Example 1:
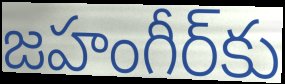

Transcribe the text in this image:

జహంగీర్‌కు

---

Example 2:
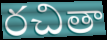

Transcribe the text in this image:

రచితా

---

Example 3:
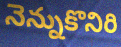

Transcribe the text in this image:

నెన్నుకొనిరి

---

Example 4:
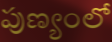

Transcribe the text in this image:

పుణ్యంలో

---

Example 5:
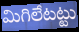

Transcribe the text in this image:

మిగిలేటట్టు